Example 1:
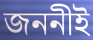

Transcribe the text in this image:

জননীই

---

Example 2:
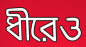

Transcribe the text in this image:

ধীরেও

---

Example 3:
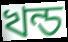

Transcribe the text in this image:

খন্ড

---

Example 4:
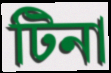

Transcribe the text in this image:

টিনা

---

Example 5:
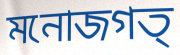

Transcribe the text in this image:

মনোজগত্